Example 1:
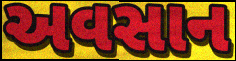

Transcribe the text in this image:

અવસાન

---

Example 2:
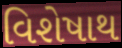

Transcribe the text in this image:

વિશેષાથ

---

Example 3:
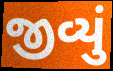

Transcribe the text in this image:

જીવ્યું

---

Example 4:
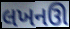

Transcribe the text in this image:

લખનઊ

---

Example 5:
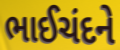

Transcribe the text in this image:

ભાઈચંદને